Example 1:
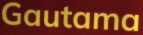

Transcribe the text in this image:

Gautama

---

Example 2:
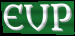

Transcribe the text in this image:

EUP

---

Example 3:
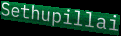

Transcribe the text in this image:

Sethupillai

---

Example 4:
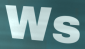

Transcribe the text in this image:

Ws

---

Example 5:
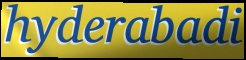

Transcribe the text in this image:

hyderabadi